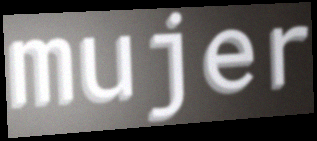
mujer